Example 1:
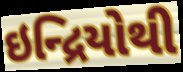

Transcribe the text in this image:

ઇન્દ્રિયોથી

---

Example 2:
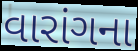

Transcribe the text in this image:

વારાંગના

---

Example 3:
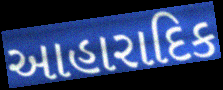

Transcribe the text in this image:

આહારાદિક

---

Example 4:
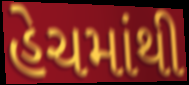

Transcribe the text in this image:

હેચમાંથી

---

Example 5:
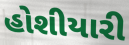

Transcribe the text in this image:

હોશીયારી